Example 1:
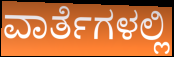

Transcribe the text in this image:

ವಾರ್ತೆಗಳಲ್ಲಿ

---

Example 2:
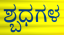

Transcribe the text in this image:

ಶ್ಬಧಗಳ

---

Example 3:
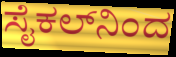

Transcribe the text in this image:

ಸೈಕಲ್‌ನಿಂದ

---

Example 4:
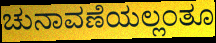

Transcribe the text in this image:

ಚುನಾವಣೆಯಲ್ಲಂತೂ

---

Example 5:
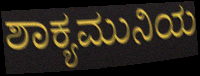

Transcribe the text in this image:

ಶಾಕ್ಯಮುನಿಯ